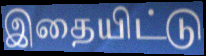
இதையிட்டு